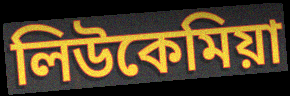
লিউকেমিয়া